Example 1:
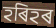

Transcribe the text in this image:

হৰিহৰ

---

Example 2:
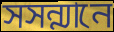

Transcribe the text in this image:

সসন্মানে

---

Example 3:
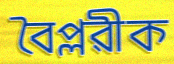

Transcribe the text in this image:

বৈপ্লৱীক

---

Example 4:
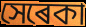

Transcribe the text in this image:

সেৰেকা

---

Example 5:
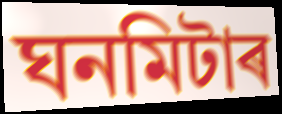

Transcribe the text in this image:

ঘনমিটাৰ